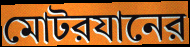
মোটরযানের